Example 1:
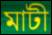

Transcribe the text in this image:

মাটী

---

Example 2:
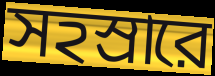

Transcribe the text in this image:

সহস্রারে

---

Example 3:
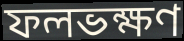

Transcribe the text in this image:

ফলভক্ষণ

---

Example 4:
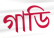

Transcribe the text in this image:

গাডি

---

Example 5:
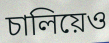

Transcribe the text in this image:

চালিয়েও